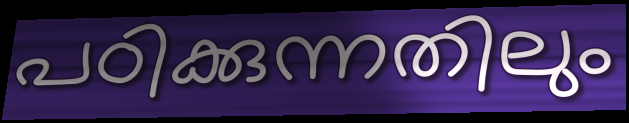
പഠിക്കുന്നതിലും